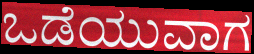
ಒಡೆಯುವಾಗ